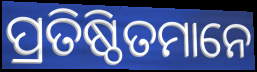
ପ୍ରତିଷ୍ଠିତମାନେ